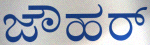
ಜೌಹರ್